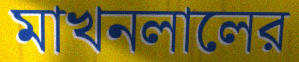
মাখনলালের